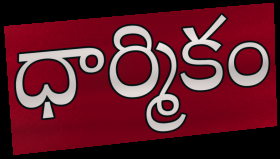
ధార్మికం